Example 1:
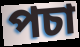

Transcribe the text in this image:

পচা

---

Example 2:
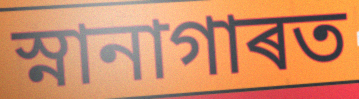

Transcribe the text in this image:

স্নানাগাৰত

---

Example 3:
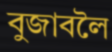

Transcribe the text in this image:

বুজাবলৈ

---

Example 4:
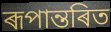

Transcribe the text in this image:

ৰূপান্তৰিত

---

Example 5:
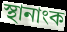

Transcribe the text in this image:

স্থানাংক